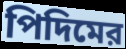
পিদিমের